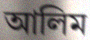
আলিম